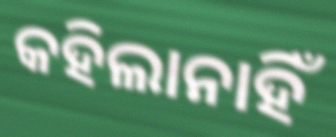
କହିଲାନାହିଁ